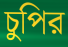
চুপির